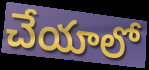
చేయాలో